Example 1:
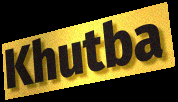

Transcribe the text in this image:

Khutba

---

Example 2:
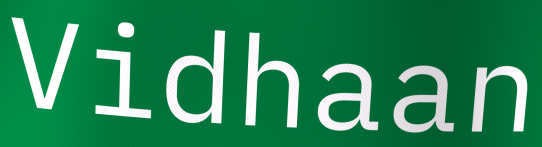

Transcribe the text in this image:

Vidhaan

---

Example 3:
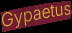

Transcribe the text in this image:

Gypaetus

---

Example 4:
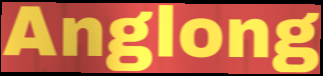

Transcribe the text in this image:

Anglong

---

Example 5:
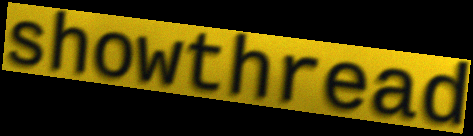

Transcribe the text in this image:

showthread